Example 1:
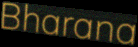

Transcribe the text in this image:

Bharana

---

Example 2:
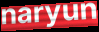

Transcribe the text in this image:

naryun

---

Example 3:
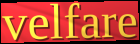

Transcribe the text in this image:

velfare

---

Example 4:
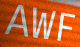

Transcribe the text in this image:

AWF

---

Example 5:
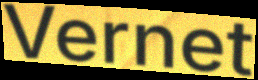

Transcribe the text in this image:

Vernet